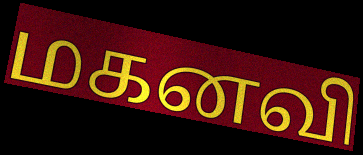
மகனவி